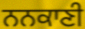
ਨਨਕਾਣੀ